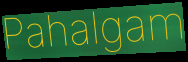
Pahalgam